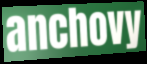
anchovy